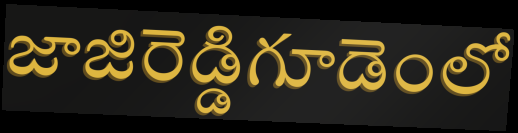
జాజిరెడ్డిగూడెంలో